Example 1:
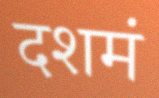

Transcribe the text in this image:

दशमं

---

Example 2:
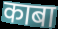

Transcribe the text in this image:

काबा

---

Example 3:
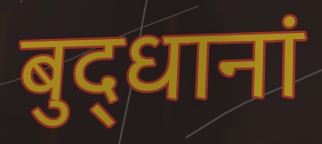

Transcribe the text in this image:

बुद्धानां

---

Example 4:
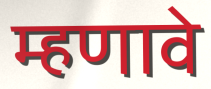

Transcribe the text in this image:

म्हणावे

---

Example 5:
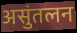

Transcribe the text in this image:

असुंतलन